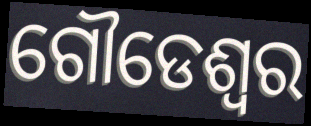
ଗୌଡେଶ୍ୱର